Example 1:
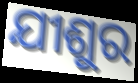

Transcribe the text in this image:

ଯୀଶୁର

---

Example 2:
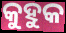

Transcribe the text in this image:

କୁହୁକ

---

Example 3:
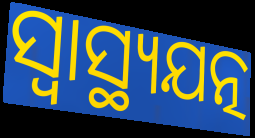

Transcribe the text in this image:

ସ୍ୱାସ୍ଥ୍ୟଯତ୍ନ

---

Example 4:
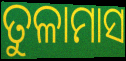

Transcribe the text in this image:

ତୁଳାମାସ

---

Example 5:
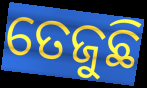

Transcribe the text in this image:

ତେଜୁଛି